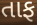
તાફ